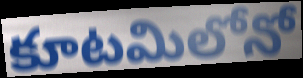
కూటమిలోనో